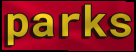
parks